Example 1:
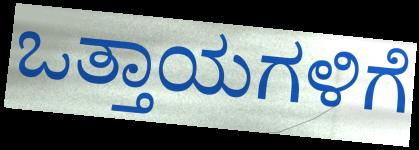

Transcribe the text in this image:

ಒತ್ತಾಯಗಳಿಗೆ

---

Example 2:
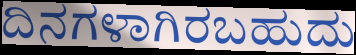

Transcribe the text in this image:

ದಿನಗಳಾಗಿರಬಹುದು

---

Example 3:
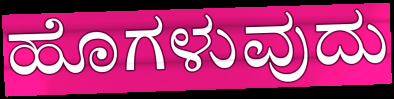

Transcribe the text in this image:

ಹೊಗಳುವುದು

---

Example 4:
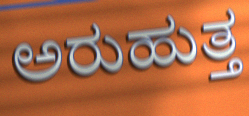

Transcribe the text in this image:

ಅರುಹುತ್ತ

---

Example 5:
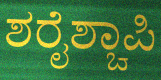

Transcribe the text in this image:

ಶರೈಶ್ಚಾಪಿ